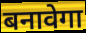
बनावेगा